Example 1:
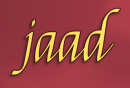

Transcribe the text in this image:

jaad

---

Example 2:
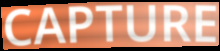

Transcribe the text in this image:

CAPTURE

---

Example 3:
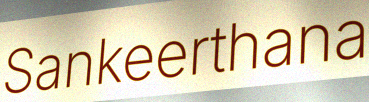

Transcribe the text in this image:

Sankeerthana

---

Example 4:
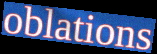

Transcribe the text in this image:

oblations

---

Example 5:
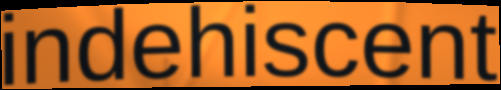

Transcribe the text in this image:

indehiscent